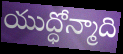
యుద్ధోన్మాది